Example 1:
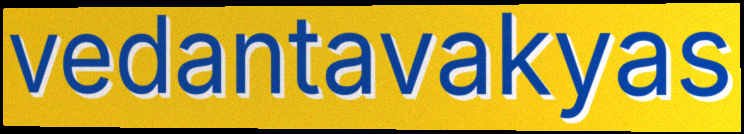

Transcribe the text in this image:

vedantavakyas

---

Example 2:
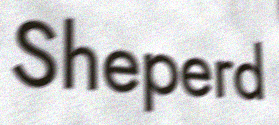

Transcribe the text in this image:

Sheperd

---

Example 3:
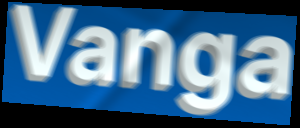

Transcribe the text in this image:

Vanga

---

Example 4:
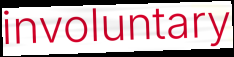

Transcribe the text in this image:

involuntary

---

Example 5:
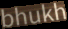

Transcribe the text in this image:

bhukh